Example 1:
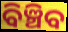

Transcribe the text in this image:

ବିଞ୍ଚିବ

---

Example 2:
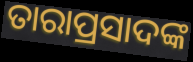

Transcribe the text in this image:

ତାରାପ୍ରସାଦଙ୍କ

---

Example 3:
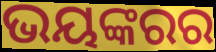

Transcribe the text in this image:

ଭୟଙ୍କରର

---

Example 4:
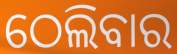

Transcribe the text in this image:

ଠେଲିବାର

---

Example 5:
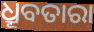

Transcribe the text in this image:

ଧ୍ରୂବତାରା